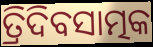
ତ୍ରିଦିବସାତ୍ମକ